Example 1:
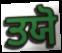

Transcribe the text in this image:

ਤਯੋ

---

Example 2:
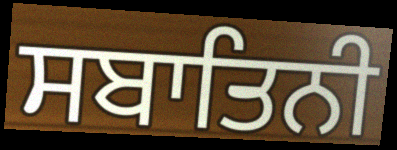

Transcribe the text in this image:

ਸਬਾਤਿਨੀ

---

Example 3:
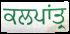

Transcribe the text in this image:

ਕਲਪਾਂਤ੍ਰ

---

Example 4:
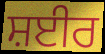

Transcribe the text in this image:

ਸ਼ਈਰ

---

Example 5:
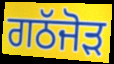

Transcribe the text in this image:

ਗਠੱਜੋੜ